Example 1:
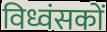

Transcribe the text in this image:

विध्वंसकों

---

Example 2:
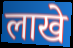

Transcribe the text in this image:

लाखे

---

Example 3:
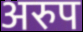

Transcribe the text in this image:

अरुप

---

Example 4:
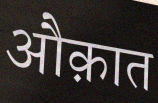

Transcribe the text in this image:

औक़ात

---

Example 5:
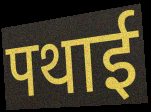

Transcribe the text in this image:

पथाई